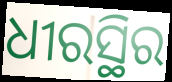
ଧୀରସ୍ଥିର